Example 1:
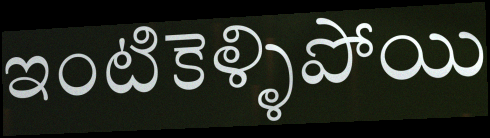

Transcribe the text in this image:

ఇంటికెళ్ళిపోయి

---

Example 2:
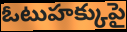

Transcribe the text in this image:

ఓటుహక్కుపై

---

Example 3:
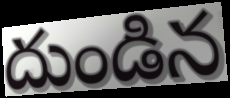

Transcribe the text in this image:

దుండిన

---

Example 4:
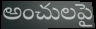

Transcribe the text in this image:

అంచులపై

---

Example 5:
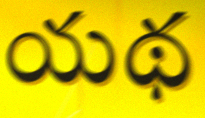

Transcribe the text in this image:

యథ